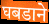
घबडाने